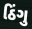
ઠિંગુ